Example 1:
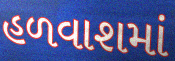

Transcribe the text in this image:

હળવાશમાં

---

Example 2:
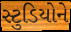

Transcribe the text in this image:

સ્ટુડિયોને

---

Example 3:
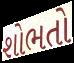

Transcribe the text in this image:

શોભતો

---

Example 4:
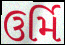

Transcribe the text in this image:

ઉર્મિ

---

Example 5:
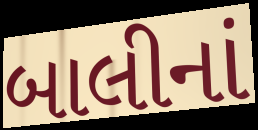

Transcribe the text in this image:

બાલીનાં